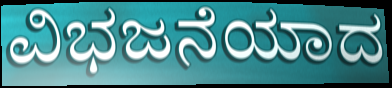
ವಿಭಜನೆಯಾದ